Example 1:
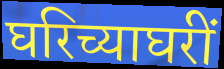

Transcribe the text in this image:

घरिच्याघरीं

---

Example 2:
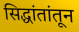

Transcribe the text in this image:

सिद्धांतांतून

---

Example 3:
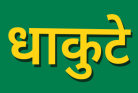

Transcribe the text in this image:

धाकुटे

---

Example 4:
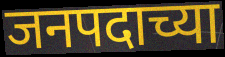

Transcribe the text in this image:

जनपदाच्या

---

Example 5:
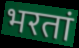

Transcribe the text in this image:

भरतां